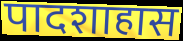
पादशाहास